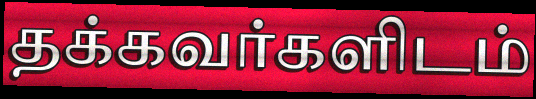
தக்கவர்களிடம்